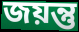
জয়ন্তু